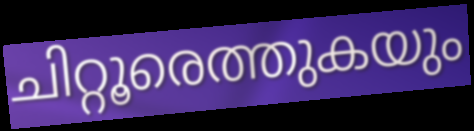
ചിറ്റൂരെത്തുകയും